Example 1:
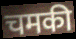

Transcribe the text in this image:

चमकी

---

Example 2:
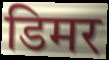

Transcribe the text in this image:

डिमर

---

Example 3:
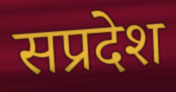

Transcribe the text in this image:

सप्रदेश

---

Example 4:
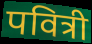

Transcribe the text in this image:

पवित्री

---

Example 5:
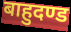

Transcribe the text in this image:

बाहुदण्ड